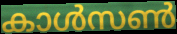
കാൾസൺ